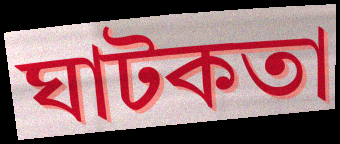
ঘাটকতা